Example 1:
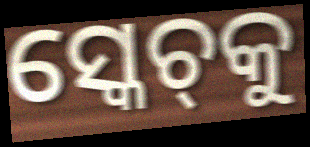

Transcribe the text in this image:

ସ୍କେଚ୍‌କୁ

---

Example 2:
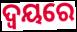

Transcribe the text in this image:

ଦ୍ୱୟରେ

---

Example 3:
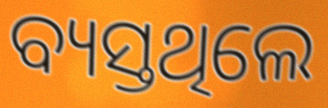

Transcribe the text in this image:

ବ୍ୟସ୍ତଥିଲେ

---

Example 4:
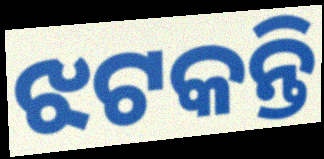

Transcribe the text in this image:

ଝଟକନ୍ତି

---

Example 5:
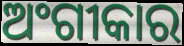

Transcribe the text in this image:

ଅଂଗୀକାର